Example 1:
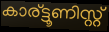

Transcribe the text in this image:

കാര്ട്ടൂണിസ്റ്റ്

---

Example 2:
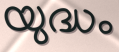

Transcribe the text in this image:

യുദ്ധം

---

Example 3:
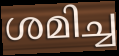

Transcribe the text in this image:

ശമിച്ച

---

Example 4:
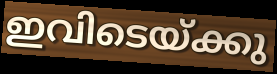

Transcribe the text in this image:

ഇവിടെയ്ക്കു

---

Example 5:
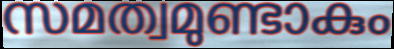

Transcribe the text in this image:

സമത്വമുണ്ടാകും